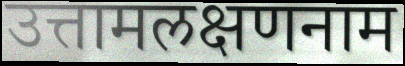
उत्तामलक्षणनाम